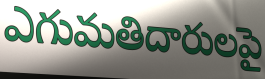
ఎగుమతిదారులపై